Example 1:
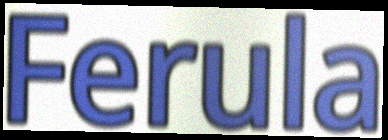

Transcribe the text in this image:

Ferula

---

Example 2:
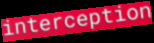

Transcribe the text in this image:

interception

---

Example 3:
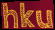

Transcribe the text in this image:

hku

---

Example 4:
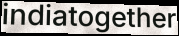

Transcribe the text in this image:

indiatogether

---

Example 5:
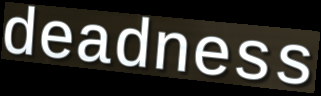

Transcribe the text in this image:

deadness